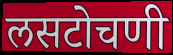
लसटोचणी